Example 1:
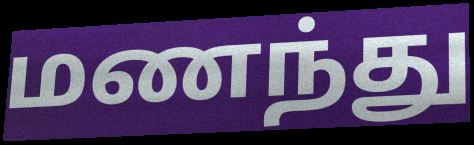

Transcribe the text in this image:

மணந்து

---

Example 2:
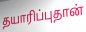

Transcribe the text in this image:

தயாரிப்புதான்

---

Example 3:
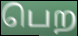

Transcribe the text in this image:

பெற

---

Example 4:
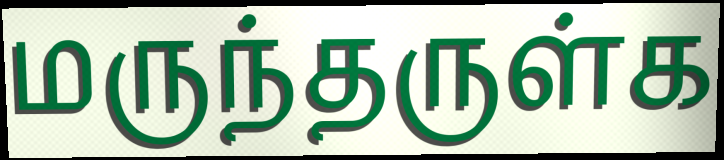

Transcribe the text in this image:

மருந்தருள்க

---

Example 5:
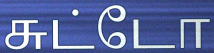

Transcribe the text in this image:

சுட்டோ